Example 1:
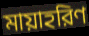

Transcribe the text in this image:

মায়াহরিণ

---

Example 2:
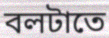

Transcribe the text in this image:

বলটাতে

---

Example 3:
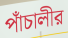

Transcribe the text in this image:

পাঁচালীর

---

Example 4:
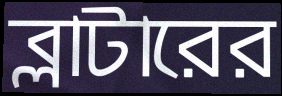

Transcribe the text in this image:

ব্লাটারের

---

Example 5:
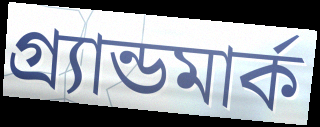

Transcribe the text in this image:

গ্র্যান্ডমার্ক